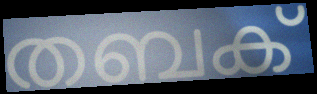
തബക്